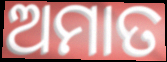
ଅମାତ